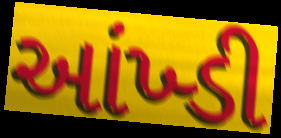
આંખ્ડી